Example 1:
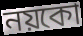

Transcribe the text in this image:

নয়কো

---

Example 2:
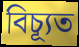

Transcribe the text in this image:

বিচ্যূত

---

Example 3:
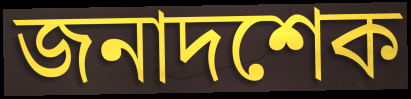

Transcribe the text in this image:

জনাদশেক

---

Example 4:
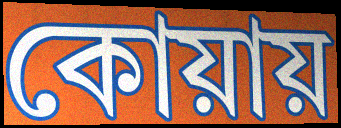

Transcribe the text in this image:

কোয়ায়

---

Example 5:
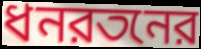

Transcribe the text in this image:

ধনরতনের